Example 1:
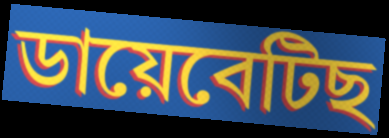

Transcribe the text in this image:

ডায়েবেটিছ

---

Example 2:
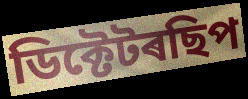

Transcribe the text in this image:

ডিক্টেটৰছিপ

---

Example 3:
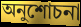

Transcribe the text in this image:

অনুশোচনা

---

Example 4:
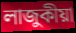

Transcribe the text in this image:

লাজুকীয়া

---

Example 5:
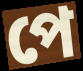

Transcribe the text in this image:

পে